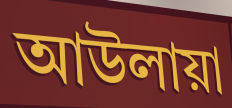
আউলায়া